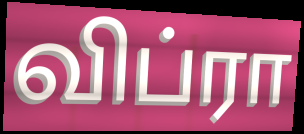
விப்ரா